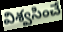
విశ్వసించే